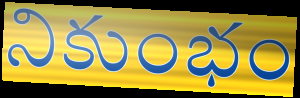
నికుంభం